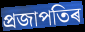
প্ৰজাপতিৰ